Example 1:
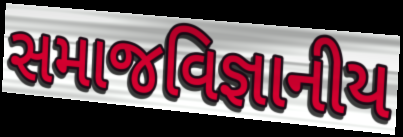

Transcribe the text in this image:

સમાજવિજ્ઞાનીય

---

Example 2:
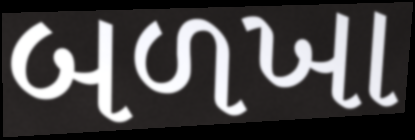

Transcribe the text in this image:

બળખા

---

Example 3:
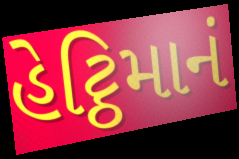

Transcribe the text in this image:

હેટ્ઠિમાનં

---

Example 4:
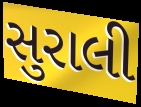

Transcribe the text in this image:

સુરાલી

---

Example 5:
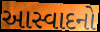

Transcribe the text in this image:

આસ્વાદનો